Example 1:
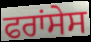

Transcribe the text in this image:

ਫਰਾਂਸੇਸ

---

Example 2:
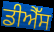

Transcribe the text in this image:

ਡੀਐੱਸ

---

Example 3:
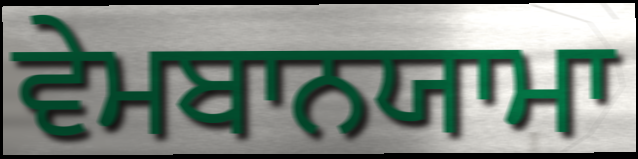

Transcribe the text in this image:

ਵੇਮਬਾਨਯਾਮਾ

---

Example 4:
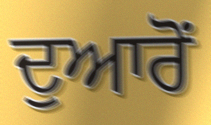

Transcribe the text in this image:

ਦੁਆਰੋਂ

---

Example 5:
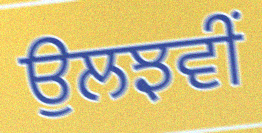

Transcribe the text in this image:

ਉਲਝਵੀਂ